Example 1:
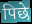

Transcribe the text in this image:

पिछे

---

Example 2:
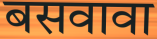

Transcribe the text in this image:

बसवावा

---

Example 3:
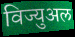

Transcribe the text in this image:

विज्युअल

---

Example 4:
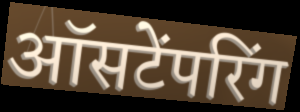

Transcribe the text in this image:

ऑसटेंपरिंग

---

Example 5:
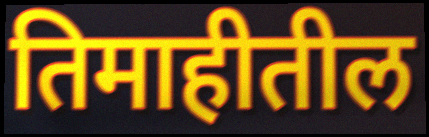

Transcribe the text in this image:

तिमाहीतील